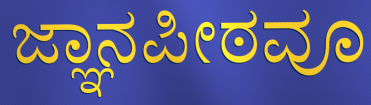
ಜ್ಞಾನಪೀಠವೂ